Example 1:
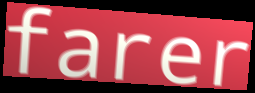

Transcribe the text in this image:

farer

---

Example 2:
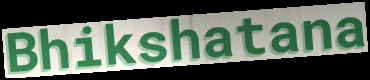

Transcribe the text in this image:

Bhikshatana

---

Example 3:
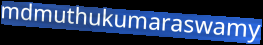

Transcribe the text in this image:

mdmuthukumaraswamy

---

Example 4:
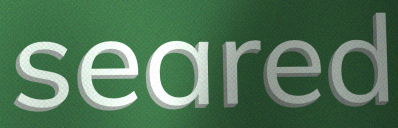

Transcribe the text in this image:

seared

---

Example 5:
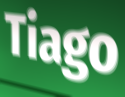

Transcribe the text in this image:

Tiago